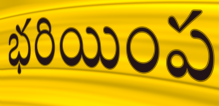
భరియింప